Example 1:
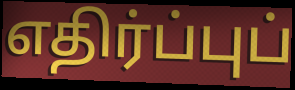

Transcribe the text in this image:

எதிர்ப்புப்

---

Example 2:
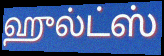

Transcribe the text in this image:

ஹுல்ட்ஸ்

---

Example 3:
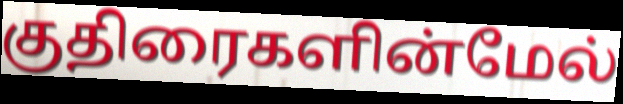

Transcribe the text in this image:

குதிரைகளின்மேல்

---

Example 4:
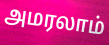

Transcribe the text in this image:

அமரலாம்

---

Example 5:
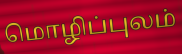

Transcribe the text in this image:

மொழிப்புலம்